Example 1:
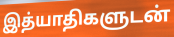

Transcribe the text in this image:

இத்யாதிகளுடன்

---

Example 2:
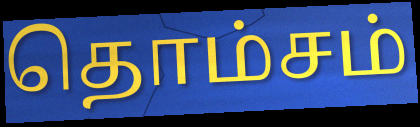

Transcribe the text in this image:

தொம்சம்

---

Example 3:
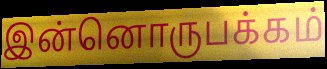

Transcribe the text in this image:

இன்னொருபக்கம்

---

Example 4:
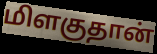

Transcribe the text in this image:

மிளகுதான்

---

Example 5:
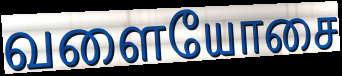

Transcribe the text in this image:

வளையோசை